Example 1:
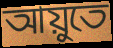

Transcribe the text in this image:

আয়ুতে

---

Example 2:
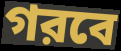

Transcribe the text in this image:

গরবে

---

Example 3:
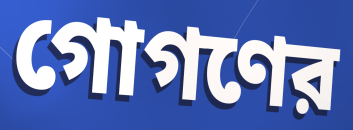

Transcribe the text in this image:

গোগণের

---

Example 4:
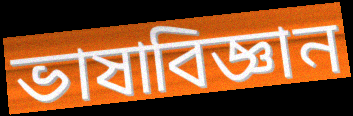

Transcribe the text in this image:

ভাষাবিজ্ঞান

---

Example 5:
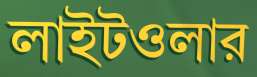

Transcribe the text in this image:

লাইটওলার